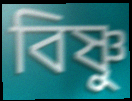
বিষ্ণু